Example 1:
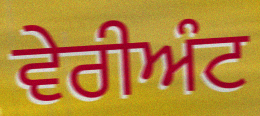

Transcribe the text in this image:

ਵੇਰੀਅੰਟ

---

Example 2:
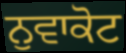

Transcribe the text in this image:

ਨੁਵਾਕੋਟ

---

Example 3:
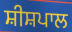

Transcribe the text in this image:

ਸ਼ੀਸ਼ਪਾਲ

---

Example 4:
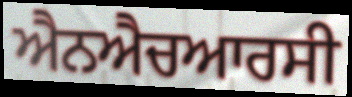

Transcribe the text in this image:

ਐਨਐਚਆਰਸੀ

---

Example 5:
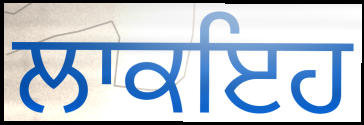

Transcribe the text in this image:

ਲਾਕਇਹ